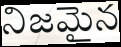
నిజమైన